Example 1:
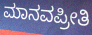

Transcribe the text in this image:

ಮಾನವಪ್ರೀತಿ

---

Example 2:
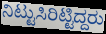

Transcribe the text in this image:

ನಿಟ್ಟುಸಿರಿಟ್ಟಿದ್ದರು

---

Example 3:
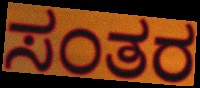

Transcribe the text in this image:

ಸಂತರ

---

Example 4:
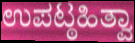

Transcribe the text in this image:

ಉಪಟ್ಠಹಿತ್ವಾ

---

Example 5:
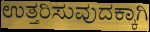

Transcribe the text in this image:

ಉತ್ತರಿಸುವುದಕ್ಕಾಗಿ